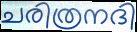
ചരിത്രനദി